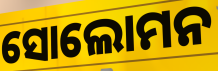
ସୋଲୋମନ